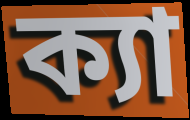
ক্যা